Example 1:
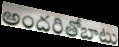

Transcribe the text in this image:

అందరితోబాటు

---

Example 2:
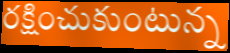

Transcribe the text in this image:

రక్షించుకుంటున్న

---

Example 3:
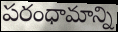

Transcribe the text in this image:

పరంధామాన్ని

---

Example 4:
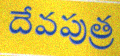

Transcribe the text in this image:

దేవపుత్ర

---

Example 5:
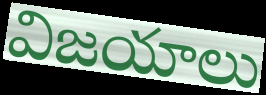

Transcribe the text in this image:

విజయాలు